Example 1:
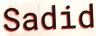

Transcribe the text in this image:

Sadid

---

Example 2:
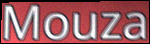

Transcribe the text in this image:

Mouza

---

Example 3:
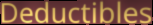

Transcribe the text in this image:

Deductibles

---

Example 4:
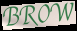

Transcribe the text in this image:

BROW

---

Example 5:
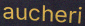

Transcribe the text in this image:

aucheri